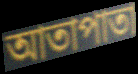
আতাপাতা